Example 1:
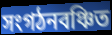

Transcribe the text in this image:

সংগঠনবঞ্চিত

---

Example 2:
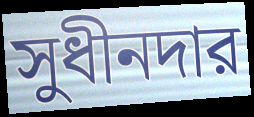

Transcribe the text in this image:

সুধীনদার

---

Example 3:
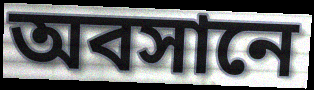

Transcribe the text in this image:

অবসানে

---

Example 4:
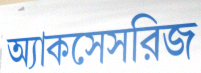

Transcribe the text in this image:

অ্যাকসেসরিজ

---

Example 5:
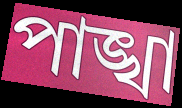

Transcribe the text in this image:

পাঙ্খা